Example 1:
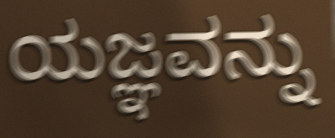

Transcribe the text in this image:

ಯಜ್ಞವನ್ನು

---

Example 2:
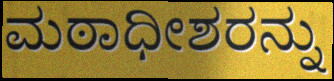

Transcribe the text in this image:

ಮಠಾಧೀಶರನ್ನು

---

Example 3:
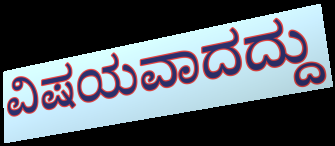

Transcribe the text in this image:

ವಿಷಯವಾದದ್ದು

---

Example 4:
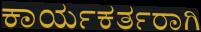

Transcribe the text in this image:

ಕಾರ್ಯಕರ್ತರಾಗಿ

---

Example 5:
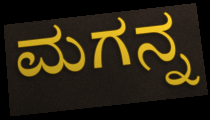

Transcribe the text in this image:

ಮಗನ್ನ